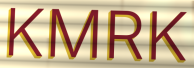
KMRK